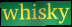
whisky